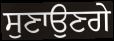
ਸੁਣਾਉਣਗੇ